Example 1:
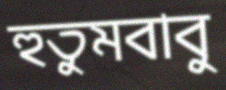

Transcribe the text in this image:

হুতুমবাবু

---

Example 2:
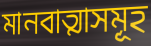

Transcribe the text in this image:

মানবাত্মাসমূহ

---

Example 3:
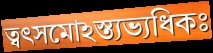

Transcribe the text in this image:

ত্বৎসমোঽস্ত্যভ্যধিকঃ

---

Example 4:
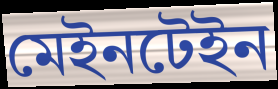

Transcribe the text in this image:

মেইনটেইন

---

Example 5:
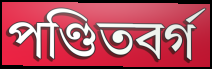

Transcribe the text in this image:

পণ্ডিতবর্গ